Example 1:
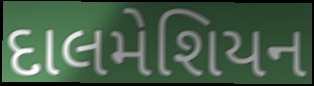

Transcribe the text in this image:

દાલમેશિયન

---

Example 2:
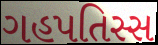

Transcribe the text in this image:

ગહપતિસ્સ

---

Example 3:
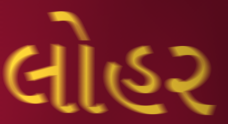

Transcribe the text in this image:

લોહર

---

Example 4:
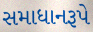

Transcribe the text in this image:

સમાધાનરૂપે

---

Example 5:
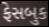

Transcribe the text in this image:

ફેસબુક